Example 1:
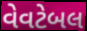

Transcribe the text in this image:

વેવટેબલ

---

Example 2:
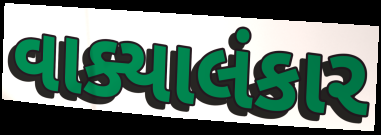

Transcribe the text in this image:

વાક્યાલંકાર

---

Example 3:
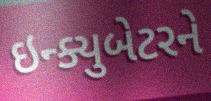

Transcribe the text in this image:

ઇન્ક્યુબેટરને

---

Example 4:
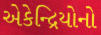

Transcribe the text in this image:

એકેન્દ્રિયોનો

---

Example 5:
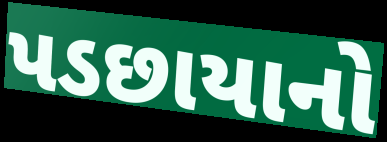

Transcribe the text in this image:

પડછાયાનો